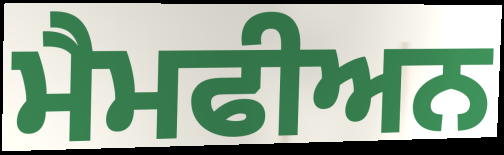
ਮੈਮਫੀਅਨ